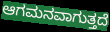
ಆಗಮನವಾಗುತ್ತದೆ